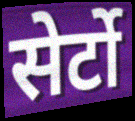
सेर्टो